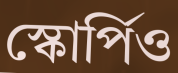
স্কোর্পিও